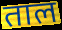
ताल